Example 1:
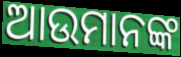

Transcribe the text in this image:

ଆଉମାନଙ୍କ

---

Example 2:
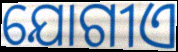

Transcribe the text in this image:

ଯୋଗୀଏ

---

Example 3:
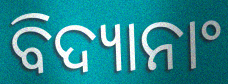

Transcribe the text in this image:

ବିଦ୍ୟାନାଂ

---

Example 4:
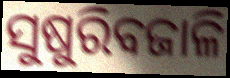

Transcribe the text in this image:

ସୁଷୁରିବଜାଳି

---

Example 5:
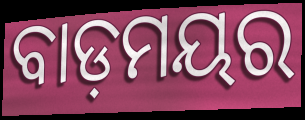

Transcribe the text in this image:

ବାଡ଼ମୟର